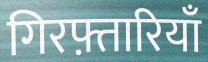
गिरफ़्तारियाँ